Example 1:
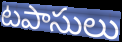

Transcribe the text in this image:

టపాసులు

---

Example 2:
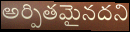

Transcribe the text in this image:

అర్పితమైనదని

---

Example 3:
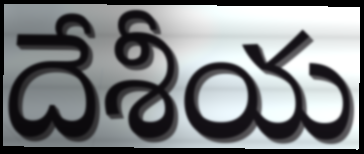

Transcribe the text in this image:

దేశీయ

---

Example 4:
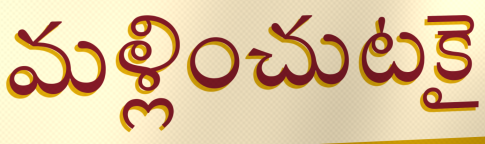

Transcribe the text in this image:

మళ్లించుటకై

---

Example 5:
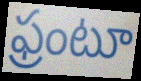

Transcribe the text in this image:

ఫ్రంటూ